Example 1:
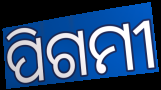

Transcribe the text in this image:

ପିଗମୀ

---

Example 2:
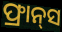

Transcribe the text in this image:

ଫ୍ରାନ୍‌ସ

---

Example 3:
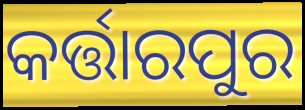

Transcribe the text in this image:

କର୍ତ୍ତାରପୁର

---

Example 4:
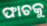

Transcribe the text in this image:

ଫାଚକୁ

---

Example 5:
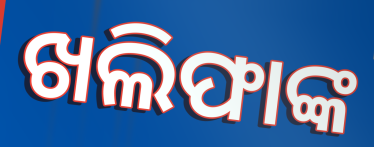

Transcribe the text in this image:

ଖଲିଫାଙ୍କ